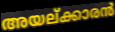
അയല്ക്കാരൻ